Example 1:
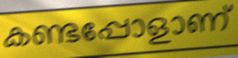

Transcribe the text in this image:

കണ്ടപ്പോളാണ്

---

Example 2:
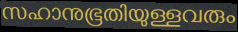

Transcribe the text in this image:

സഹാനുഭൂതിയുള്ളവരും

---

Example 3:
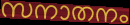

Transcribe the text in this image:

സനാതനം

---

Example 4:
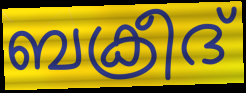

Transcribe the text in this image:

ബക്രീദ്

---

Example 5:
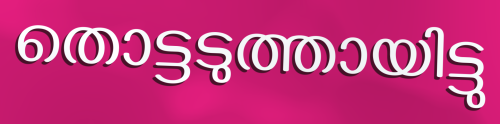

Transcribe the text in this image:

തൊട്ടടുത്തായിട്ടു